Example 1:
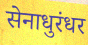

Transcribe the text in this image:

सेनाधुरंधर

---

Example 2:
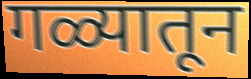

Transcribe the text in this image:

गळ्यातून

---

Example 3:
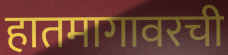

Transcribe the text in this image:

हातमागावरची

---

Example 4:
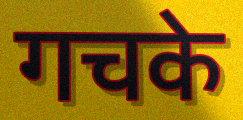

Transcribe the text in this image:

गचके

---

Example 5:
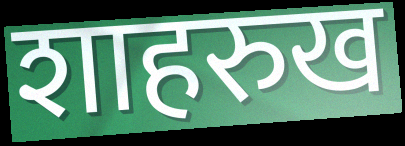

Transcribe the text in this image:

शाहरुख